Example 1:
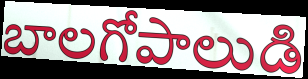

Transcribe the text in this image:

బాలగోపాలుడి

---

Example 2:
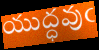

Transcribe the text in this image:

యుద్ధవుఁ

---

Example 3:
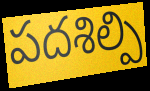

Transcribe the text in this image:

పదశిల్పి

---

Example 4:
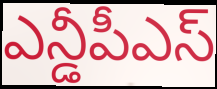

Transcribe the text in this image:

ఎన్డీపీఎస్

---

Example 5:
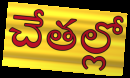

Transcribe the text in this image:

చేతల్లో